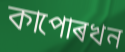
কাপোৰখন